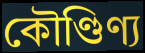
কৌণ্ডিণ্য